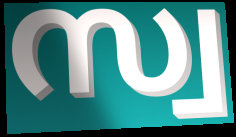
സ്വ